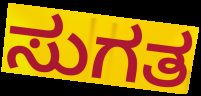
ಸುಗತ